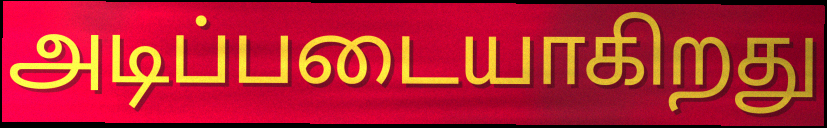
அடிப்படையாகிறது